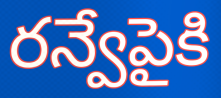
రన్వేపైకి